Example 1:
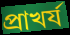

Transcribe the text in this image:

প্রাখর্য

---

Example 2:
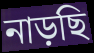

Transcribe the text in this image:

নাড়ছি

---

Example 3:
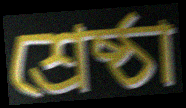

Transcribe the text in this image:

শ্রেষ্ঠা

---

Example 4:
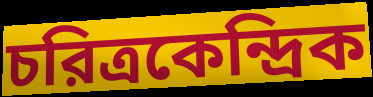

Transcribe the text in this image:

চরিত্রকেন্দ্রিক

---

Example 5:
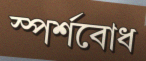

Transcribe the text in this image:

স্পর্শবোধ